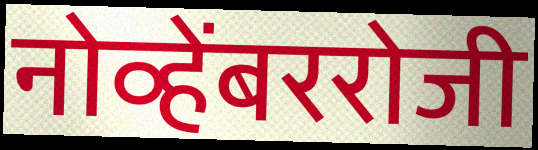
नोव्हेंबररोजी